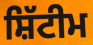
ਸ਼ਿੱਟੀਮ